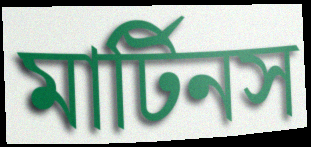
মার্টিনস